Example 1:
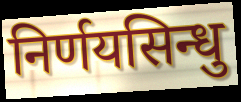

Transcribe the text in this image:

निर्णयसिन्धु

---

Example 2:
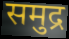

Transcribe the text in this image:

समुद्र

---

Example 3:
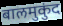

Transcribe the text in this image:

बालमुकुंद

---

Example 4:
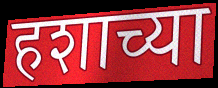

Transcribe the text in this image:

हशाच्या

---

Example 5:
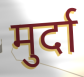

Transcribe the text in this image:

मुर्दा